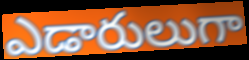
ఎడారులుగా